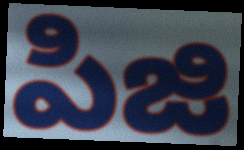
పిజి